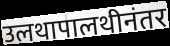
उलथापालथीनंतर